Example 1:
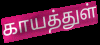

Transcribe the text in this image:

காயத்துள்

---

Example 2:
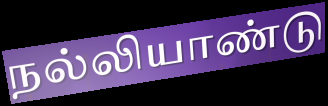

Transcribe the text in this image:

நல்லியாண்டு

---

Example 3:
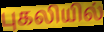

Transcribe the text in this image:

புகலியில்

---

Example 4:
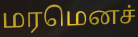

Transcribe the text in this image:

மரமெனச்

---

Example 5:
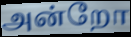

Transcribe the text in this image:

அன்றோ